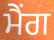
ਮੈਂਗ